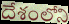
దేశంలోని